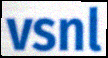
vsnl